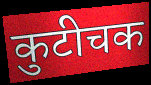
कुटीचक